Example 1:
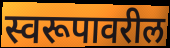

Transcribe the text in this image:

स्वरूपावरील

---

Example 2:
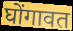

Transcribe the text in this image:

घोंगावत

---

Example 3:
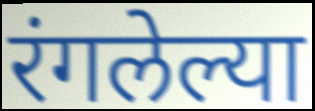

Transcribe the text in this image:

रंगलेल्या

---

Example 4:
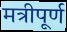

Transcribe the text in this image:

मत्रीपूर्ण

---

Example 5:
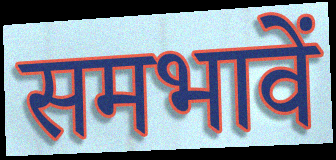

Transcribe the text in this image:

समभावें